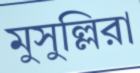
মুসুল্লিরা